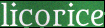
licorice